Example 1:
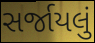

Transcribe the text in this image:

સર્જાયલું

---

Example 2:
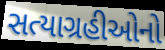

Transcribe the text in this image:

સત્યાગ્રહીઓનો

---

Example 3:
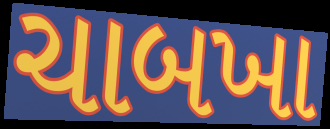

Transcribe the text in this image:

ચાબખા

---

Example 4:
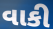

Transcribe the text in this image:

વાકી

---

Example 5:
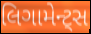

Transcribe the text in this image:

લિગામેન્ટ્સ